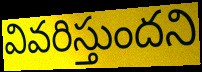
వివరిస్తుందని